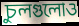
চুলগুলোও